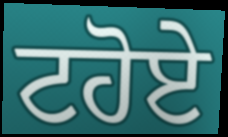
ਟਹੋਏ